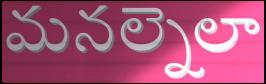
మనల్నెలా